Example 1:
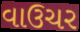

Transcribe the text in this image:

વાઉચર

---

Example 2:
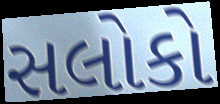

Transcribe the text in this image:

સલોકો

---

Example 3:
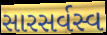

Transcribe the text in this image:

સારસર્વસ્વ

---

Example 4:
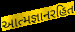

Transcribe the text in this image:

આત્મજ્ઞાનરહિત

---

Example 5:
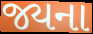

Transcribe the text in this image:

જ્યના